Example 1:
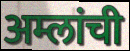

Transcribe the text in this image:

अम्‍लांची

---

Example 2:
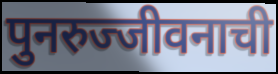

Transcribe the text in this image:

पुनरुज्जीवनाची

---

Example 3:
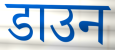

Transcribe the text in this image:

डाउन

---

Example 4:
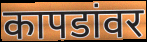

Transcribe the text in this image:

कापडांवर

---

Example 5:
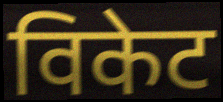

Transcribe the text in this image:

विकेट